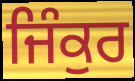
ਜਿੰਕੁਰ